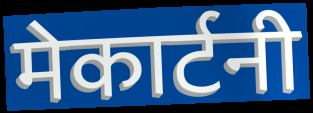
मेकार्टनी